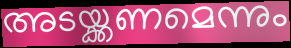
അടയ്ക്കണമെന്നും